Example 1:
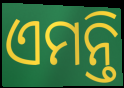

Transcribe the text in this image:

ଏମନ୍ତି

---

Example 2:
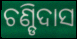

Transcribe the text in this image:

ଚଣ୍ଡିଦାସ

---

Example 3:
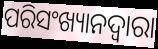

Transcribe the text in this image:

ପରିସଂଖ୍ୟାନଦ୍ଵାରା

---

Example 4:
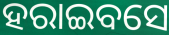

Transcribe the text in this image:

ହରାଇବସେ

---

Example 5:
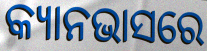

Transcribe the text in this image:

କ୍ୟାନଭାସରେ